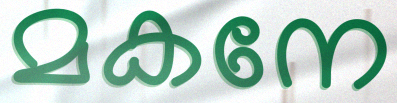
മകനേ